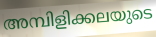
അമ്പിളിക്കലയുടെ